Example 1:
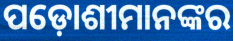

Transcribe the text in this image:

ପଡ଼ୋଶୀମାନଙ୍କର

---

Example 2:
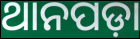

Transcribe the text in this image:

ଥାନପଡ଼ା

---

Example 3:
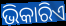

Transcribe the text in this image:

ଭିକାରିଏ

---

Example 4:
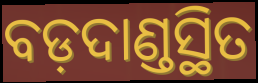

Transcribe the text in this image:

ବଡ଼ଦାଣ୍ଡସ୍ଥିତ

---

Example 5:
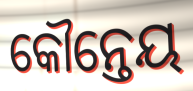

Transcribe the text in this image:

କୌନ୍ତେୟ